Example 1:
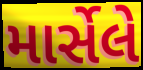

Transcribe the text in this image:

માર્સેલે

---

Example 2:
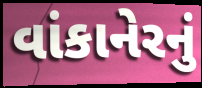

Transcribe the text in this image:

વાંકાનેરનું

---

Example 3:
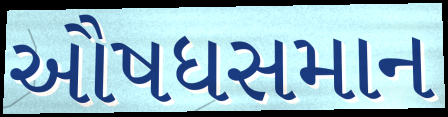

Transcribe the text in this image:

ઔષધસમાન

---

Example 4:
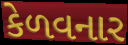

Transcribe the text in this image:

કેળવનાર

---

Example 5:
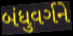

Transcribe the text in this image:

બંધુવર્ગને